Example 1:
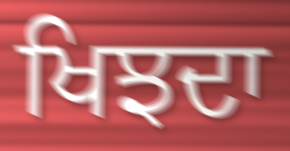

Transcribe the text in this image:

ਖਿਝਦਾ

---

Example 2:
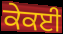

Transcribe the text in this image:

ਕੇਕਈ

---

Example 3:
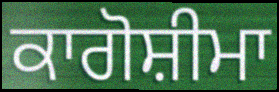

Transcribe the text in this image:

ਕਾਗੋਸ਼ੀਮਾ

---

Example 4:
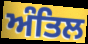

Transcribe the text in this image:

ਅੰਤਿਲ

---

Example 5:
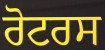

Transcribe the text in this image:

ਰੋਟਰਸ